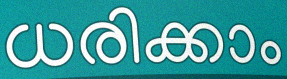
ധരിക്കാം